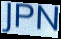
JPN